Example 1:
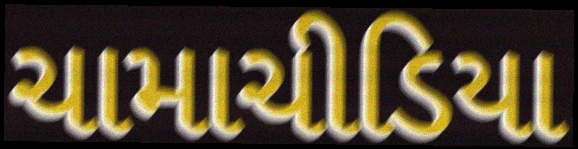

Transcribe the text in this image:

ચામાચીડિયા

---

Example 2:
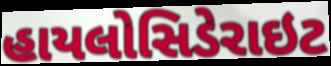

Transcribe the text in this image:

હાયલોસિડેરાઇટ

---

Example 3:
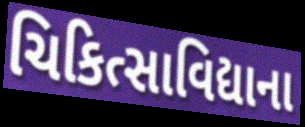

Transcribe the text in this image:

ચિકિત્સાવિદ્યાના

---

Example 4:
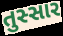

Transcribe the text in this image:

તુસ્સાર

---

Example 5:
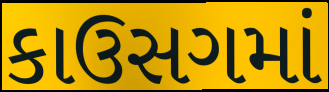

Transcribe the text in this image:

કાઉસગમાં